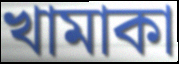
খামাকা